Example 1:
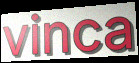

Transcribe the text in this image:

vinca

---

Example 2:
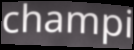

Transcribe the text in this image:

champi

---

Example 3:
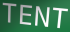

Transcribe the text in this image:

TENT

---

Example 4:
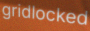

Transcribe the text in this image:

gridlocked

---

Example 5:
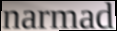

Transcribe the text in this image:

narmad